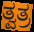
ತ್ವತ್ರ